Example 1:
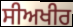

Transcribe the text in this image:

ਸੀਅਖੀਰ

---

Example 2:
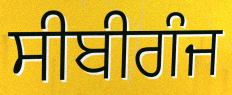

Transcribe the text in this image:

ਸੀਬੀਗੰਜ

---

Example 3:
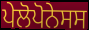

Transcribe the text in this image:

ਪੇਲੋਪੋਨੇਸਸ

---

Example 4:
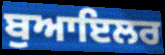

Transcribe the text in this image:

ਬੁਆਇਲਰ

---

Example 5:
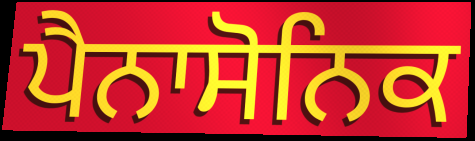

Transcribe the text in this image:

ਪੈਨਾਸੋਨਿਕ